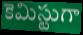
కెమిస్టుగా